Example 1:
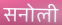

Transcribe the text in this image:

सनोली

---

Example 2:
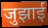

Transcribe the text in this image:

जुझाई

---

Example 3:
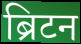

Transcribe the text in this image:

ब्रिटन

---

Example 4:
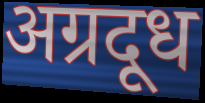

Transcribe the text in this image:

अग्रदूध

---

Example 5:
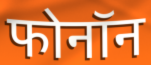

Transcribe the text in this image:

फोनॉन